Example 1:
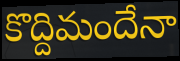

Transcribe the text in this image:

కొద్దిమందేనా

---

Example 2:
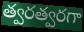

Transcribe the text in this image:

త్వరత్వరగా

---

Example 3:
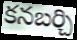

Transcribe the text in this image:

కనబర్చి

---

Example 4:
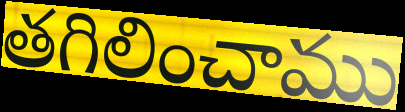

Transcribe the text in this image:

తగిలించాము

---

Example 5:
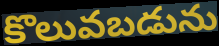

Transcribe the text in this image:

కొలువబడును